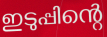
ഇടുപ്പിന്റെ